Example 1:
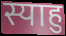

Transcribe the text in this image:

स्याहु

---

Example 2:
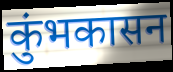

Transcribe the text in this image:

कुंभकासन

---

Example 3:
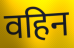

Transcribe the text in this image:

वहिन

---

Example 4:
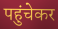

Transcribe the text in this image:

पहुंचेकर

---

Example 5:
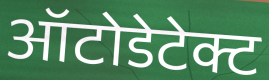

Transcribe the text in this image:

ऑटोडेटेक्ट